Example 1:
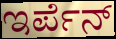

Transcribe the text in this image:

ಇರ್ಪೆನ್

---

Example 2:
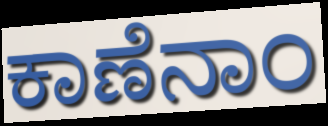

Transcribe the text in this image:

ಕಾಣೆನಾಂ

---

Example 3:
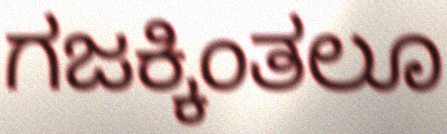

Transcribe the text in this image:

ಗಜಕ್ಕಿಂತಲೂ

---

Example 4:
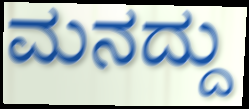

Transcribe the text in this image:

ಮನದ್ದು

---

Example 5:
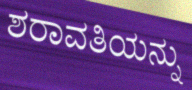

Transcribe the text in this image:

ಶರಾವತಿಯನ್ನು